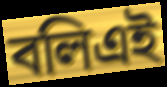
বলিএই